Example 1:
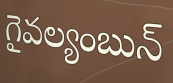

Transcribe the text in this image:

గైవల్యంబున్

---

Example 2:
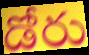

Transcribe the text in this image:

డోరు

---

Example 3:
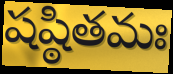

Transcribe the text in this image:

షష్ఠితమః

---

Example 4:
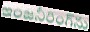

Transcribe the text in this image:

ఇంజనీరింగ్‌ను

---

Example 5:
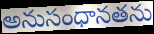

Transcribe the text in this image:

అనుసంధానతను